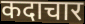
कदाचार